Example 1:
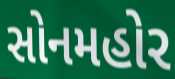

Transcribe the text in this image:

સોનમહોર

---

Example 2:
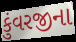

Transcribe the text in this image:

કુંવરજીના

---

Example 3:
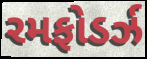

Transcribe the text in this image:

રમફોડર્ઝ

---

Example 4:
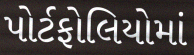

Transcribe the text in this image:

પોર્ટફોલિયોમાં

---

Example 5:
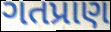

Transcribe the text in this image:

ગતપ્રાણ